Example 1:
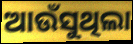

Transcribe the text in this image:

ଆଉଁସୁଥିଲା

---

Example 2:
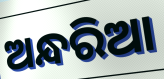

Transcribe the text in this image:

ଅନ୍ଧରିଆ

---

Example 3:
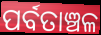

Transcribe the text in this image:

ପର୍ବତାଞ୍ଚଳ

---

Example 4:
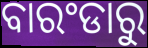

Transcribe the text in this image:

ବାରଂଡାରୁ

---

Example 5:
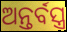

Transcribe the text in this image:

ଅନ୍ତର୍ବସ୍ତ୍ର